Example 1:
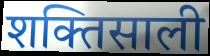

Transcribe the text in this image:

शक्तिसाली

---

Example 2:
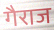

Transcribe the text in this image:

गैराज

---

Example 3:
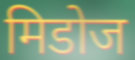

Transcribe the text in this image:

मिडोज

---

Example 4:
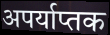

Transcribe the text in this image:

अपर्याप्तक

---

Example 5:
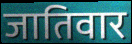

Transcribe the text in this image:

जातिवार